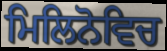
ਮਿਲਿਨੋਵਿਚ